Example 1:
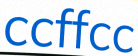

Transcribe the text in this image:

ccffcc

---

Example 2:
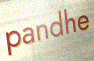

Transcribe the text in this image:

pandhe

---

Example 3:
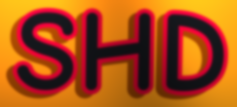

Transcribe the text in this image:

SHD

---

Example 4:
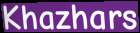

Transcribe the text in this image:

Khazhars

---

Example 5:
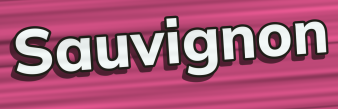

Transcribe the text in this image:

Sauvignon